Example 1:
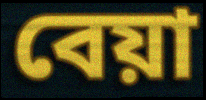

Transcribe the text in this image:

বেয়া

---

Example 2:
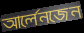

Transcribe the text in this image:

আৰ্লেনজেন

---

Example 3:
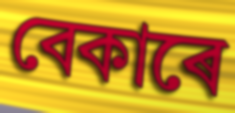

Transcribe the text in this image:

বেকাৰে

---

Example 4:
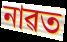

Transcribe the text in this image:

নাৱত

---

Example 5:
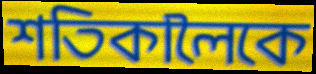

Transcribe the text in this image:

শতিকালৈকে